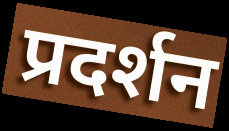
प्रदर्शन